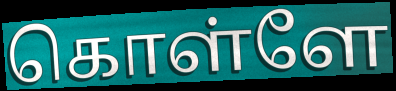
கொள்ளே